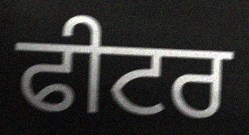
ਫੀਟਰ